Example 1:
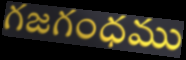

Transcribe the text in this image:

గజగంధము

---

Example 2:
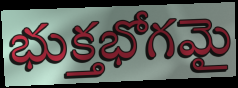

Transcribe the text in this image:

భుక్తభోగమై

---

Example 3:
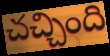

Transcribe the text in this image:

చచ్చింది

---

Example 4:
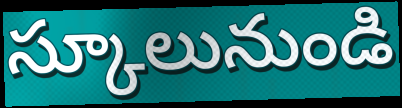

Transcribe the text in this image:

స్కూలునుండి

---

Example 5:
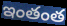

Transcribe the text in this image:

ఇంతంత